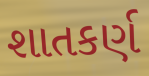
શાતકર્ણ